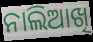
ନାଲିଆଖି